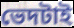
ভেদটাই